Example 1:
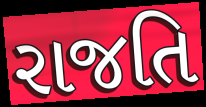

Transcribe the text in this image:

રાજતિ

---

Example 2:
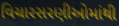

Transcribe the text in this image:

વિચારસરણીઓમાંથી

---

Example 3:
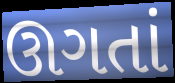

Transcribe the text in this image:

ઊગતાં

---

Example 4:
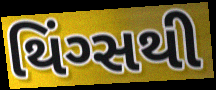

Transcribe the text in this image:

થિંગ્સથી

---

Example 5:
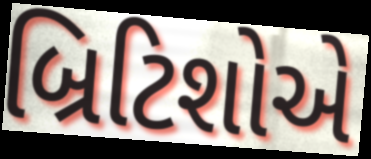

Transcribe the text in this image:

બ્રિટિશોએ